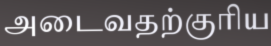
அடைவதற்குரிய